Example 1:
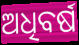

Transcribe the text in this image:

ଅଧିବର୍ଷ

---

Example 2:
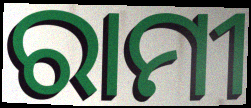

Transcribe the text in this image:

ରାମୀ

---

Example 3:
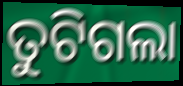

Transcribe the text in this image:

ତୁଟିଗଲା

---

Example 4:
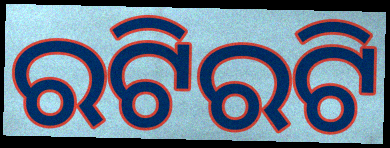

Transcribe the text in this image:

ରଟିରଟି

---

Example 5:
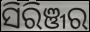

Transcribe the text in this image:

ସିରିଞ୍ଜର